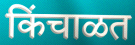
किंचाळत